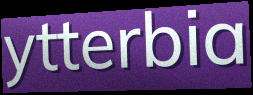
ytterbia